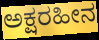
ಅಕ್ಷರಹೀನ